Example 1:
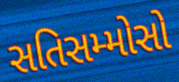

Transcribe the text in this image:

સતિસમ્મોસો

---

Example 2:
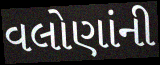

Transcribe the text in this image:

વલોણાંની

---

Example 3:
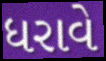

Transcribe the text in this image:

ધરાવે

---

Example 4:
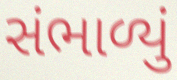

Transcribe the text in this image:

સંભાળ્યું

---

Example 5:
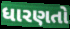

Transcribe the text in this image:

ધારણતો